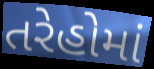
તરેહોમાં